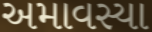
અમાવસ્યા